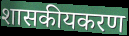
शासकीयकरण